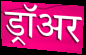
ड्रॉअर